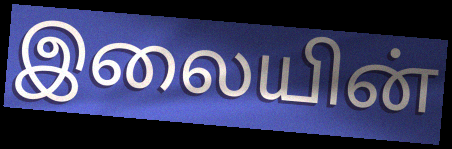
இலையின்